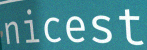
nicest